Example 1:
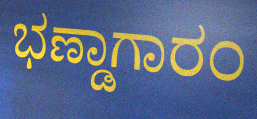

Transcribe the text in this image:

ಭಣ್ಡಾಗಾರಂ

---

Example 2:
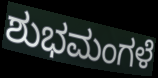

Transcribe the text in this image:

ಶುಭಮಂಗಳೆ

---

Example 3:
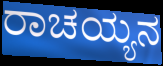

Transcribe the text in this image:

ರಾಚಯ್ಯನ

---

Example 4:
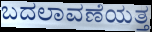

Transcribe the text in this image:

ಬದಲಾವಣೆಯತ್ತ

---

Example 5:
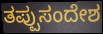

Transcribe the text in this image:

ತಪ್ಪುಸಂದೇಶ